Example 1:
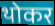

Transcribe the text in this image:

थोकर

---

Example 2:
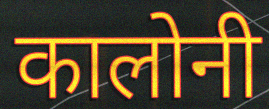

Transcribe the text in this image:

कालोनी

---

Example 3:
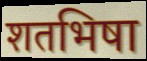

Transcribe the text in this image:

शतभिषा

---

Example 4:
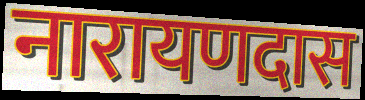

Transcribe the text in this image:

नारायणदास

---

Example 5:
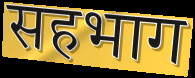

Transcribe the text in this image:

सहभाग